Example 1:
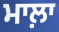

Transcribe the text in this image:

ਮਾਲ਼ਾ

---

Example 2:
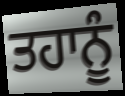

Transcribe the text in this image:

ਤਹਾਨੂੰ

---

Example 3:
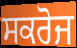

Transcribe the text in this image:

ਸਕਰੋਜ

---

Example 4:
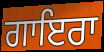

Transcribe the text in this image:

ਗਾਇਰਾ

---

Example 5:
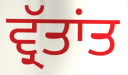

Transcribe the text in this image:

ਵ੍ਰੱਤਾਂਤ